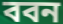
ববন